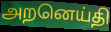
அறனெய்தி